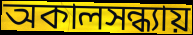
অকালসন্ধ্যায়